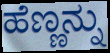
ಹೆಣ್ಣನ್ನು